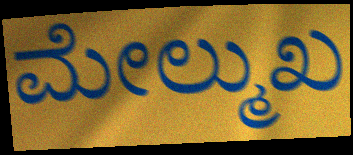
ಮೇಲ್ಮುಖ